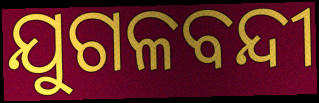
ଯୁଗଳବନ୍ଦୀ